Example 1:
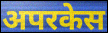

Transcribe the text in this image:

अपरकेस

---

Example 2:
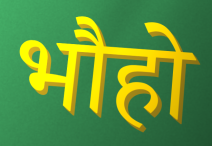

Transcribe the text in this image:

भौहो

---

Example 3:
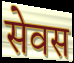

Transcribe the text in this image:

सेवस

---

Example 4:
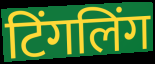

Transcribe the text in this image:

टिंगलिंग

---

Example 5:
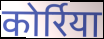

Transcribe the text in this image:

कोर्रिया